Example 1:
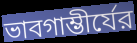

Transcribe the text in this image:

ভাবগাম্ভীর্যের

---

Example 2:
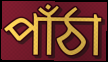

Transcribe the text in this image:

পাঁঠা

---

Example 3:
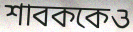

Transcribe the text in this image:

শাবককেও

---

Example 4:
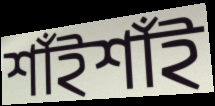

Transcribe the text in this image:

শাঁইশাঁই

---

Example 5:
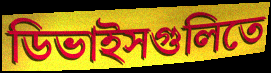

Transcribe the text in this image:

ডিভাইসগুলিতে